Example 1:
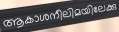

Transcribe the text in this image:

ആകാശനീലിമയിലേക്കു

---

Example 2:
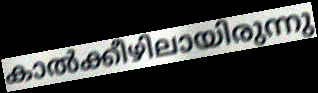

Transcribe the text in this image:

കാൽക്കീഴിലായിരുന്നു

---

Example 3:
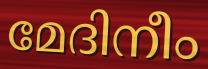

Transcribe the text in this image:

മേദിനീം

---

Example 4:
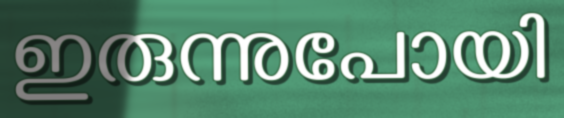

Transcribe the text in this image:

ഇരുന്നുപോയി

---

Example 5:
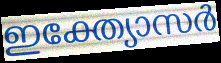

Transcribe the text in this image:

ഇക്ത്യോസർ